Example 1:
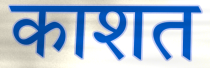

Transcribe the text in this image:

काशत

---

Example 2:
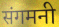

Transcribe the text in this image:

संगमनी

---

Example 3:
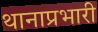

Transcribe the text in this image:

थानाप्रभारी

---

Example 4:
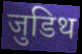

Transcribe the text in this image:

जुडिथ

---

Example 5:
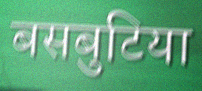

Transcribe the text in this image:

बसबुटिया